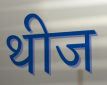
थीज